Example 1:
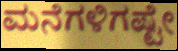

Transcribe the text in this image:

ಮನೆಗಳಿಗಷ್ಟೇ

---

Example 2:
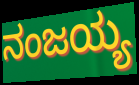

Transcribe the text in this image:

ನಂಜಯ್ಯ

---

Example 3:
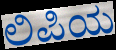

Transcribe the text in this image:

ಲಿಪಿಯ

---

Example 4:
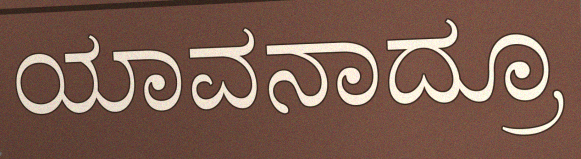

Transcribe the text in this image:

ಯಾವನಾದ್ರೂ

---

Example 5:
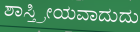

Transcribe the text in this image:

ಶಾಸ್ತ್ರೀಯವಾದುದು